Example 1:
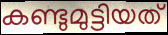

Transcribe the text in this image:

കണ്ടുമുട്ടിയത്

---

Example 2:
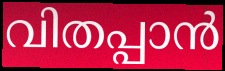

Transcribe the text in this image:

വിതപ്പാൻ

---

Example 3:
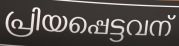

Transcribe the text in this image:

പ്രിയപ്പെട്ടവന്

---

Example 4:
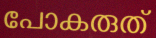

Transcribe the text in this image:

പോകരുത്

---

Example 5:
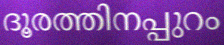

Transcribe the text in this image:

ദൂരത്തിനപ്പുറം